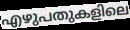
എഴുപതുകളിലെ